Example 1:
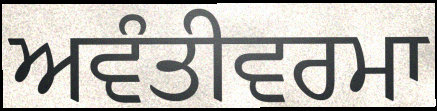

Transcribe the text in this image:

ਅਵੰਤੀਵਰਮਾ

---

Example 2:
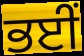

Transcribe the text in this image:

ਭਈਂ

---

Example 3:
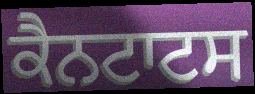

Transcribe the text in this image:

ਕੈਨਟਾਟਸ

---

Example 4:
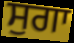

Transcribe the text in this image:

ਸੁਗਾ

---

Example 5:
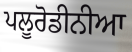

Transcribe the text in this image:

ਪਲੂਰੋਡੀਨੀਆ